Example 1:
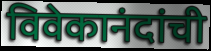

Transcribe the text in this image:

विवेकानंदांची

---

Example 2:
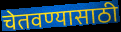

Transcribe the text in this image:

चेतवण्यासाठी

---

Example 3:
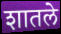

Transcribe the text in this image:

शातले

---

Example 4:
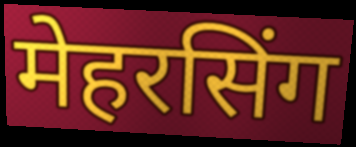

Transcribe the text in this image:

मेहरसिंग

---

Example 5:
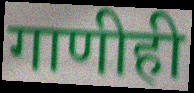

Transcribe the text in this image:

गाणीही